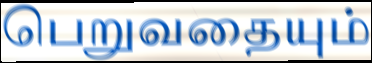
பெறுவதையும்